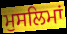
ਮੁਸਲਿਮਾਂ